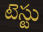
టెస్టు